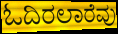
ಓದಿರಲಾರೆವು